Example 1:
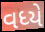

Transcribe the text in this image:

વધ્યે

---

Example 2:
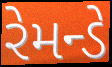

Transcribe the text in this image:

રેમન્ડે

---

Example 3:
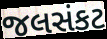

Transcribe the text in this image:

જલસંકટ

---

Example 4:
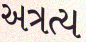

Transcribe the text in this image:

અત્રત્ય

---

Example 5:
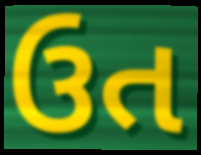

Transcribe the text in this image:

ઉત